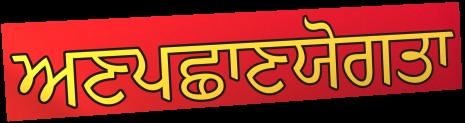
ਅਣਪਛਾਣਯੋਗਤਾ